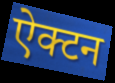
ऐक्टन